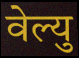
वेल्यु